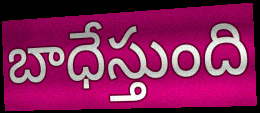
బాధేస్తుంది